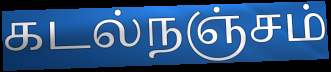
கடல்நஞ்சம்